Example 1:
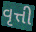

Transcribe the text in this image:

વૃત્તી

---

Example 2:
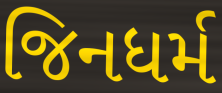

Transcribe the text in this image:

જિનધર્મ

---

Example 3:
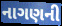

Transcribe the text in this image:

નાગણની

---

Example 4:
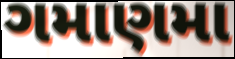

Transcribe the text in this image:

ગમાણમા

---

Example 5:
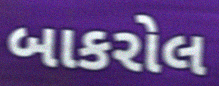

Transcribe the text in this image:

બાકરોલ